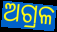
ଅଗ୍ରଳ